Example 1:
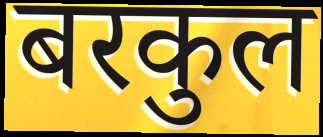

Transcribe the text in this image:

बरकुल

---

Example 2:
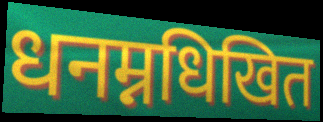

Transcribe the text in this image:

धनम्नधिखित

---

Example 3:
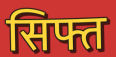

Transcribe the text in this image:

सिफ्त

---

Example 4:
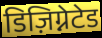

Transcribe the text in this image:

डिज़िग्नेटेड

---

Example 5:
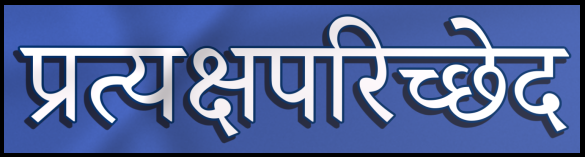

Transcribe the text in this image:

प्रत्यक्षपरिच्छेद